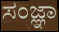
ಸಂಜ್ಞಾ